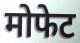
मोफेट